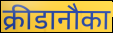
क्रीडानौका